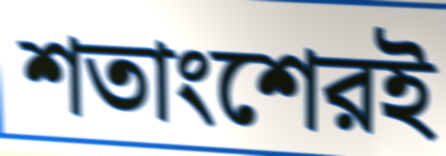
শতাংশেরই